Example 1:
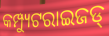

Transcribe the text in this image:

କମ୍ପ୍ୟୁଟରାଇଜଡ୍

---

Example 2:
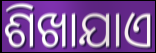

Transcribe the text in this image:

ଶିଖାଯାଏ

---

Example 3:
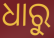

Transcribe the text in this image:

ଧାରୁ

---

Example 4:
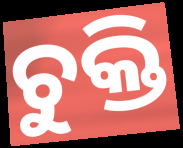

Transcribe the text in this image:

ଚୁକ୍ତି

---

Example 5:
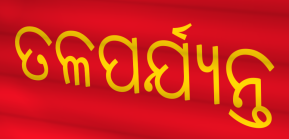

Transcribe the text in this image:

ତଳପର୍ଯ୍ୟନ୍ତ